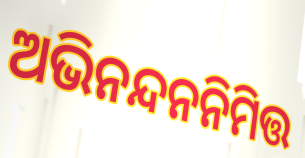
ଅଭିନନ୍ଦନନିମିତ୍ତ